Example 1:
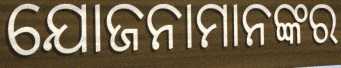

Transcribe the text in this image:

ଯୋଜନାମାନଙ୍କର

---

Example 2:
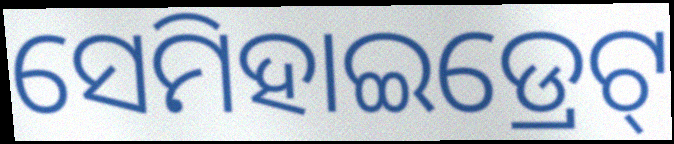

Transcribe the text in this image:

ସେମିହାଇଡ୍ରେଟ୍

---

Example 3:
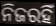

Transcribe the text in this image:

ନିଜରହିଁ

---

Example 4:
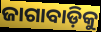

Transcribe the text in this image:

ଜାଗାବାଡ଼ିକୁ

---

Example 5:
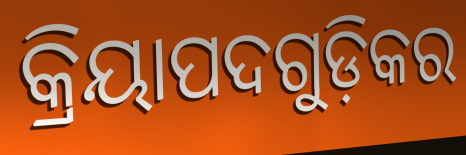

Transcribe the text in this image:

କ୍ରିୟାପଦଗୁଡ଼ିକର